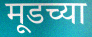
मूडच्या